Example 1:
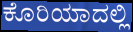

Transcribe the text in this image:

ಕೊರಿಯಾದಲ್ಲಿ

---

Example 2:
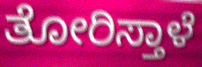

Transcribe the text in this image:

ತೋರಿಸ್ತಾಳೆ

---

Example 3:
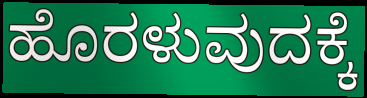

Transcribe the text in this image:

ಹೊರಳುವುದಕ್ಕೆ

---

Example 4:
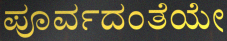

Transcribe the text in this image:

ಪೂರ್ವದಂತೆಯೇ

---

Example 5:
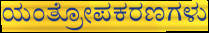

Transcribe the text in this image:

ಯಂತ್ರೋಪಕರಣಗಳು